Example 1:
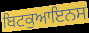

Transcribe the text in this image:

ਬਿਟਕੁਆਇਨਸ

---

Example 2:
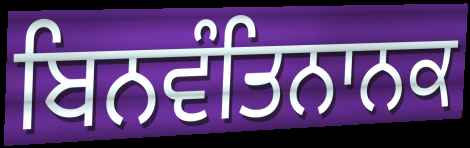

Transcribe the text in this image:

ਬਿਨਵੰਤਿਨਾਨਕ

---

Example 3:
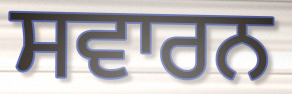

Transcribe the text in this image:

ਸਵਾਰਨ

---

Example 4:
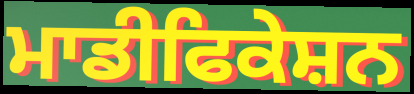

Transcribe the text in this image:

ਮਾਡੀਫਿਕੇਸ਼ਨ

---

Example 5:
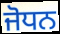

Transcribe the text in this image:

ਜੋਧਨ